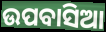
ଉପବାସିଆ